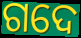
ଗଦେ